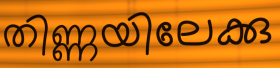
തിണ്ണയിലേക്കു